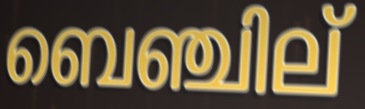
ബെഞ്ചില്